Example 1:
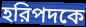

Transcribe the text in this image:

হরিপদকে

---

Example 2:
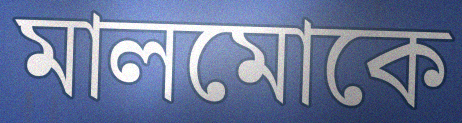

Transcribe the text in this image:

মালমোকে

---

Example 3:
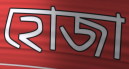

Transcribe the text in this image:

হোজা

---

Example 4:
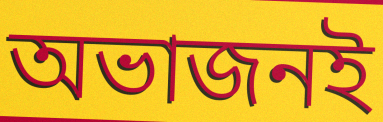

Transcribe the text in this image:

অভাজনই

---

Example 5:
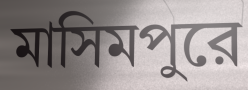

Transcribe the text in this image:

মাসিমপুরে